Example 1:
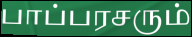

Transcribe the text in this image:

பாப்பரசரும்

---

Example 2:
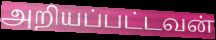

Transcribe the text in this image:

அறியப்பட்டவன்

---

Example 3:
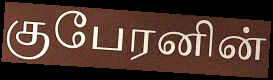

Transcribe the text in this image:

குபேரனின்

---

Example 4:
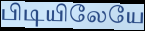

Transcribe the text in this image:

பிடியிலேயே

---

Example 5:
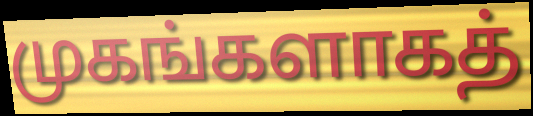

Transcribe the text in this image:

முகங்களாகத்